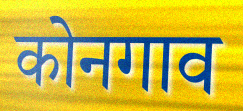
कोनगाव